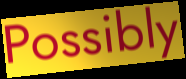
Possibly